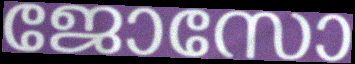
ജോസോ